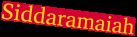
Siddaramaiah